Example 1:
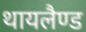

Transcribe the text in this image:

थायलैण्ड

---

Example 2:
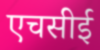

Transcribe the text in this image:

एचसीई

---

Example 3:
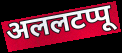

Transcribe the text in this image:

अललटप्पू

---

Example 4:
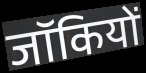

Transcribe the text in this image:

जॉकियों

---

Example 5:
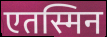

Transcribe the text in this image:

एतस्मिन